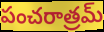
పంచరాత్రమ్